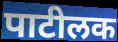
पाटीलक